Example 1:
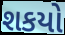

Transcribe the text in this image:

શકયો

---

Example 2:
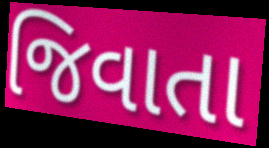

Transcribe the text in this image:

જિવાતા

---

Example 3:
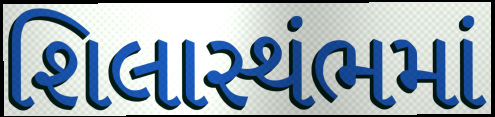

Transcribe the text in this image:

શિલાસ્થંભમાં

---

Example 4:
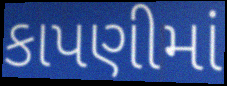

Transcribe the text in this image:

કાપણીમાં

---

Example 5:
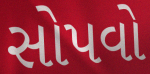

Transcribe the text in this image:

સોપવો